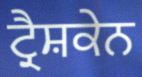
ਟ੍ਰੈਸ਼ਕੇਨ